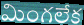
మింగలేక